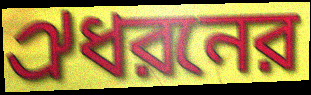
ঐধরনের